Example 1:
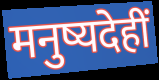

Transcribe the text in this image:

मनुष्यदेहीं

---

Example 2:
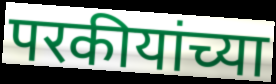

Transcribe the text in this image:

परकीयांच्या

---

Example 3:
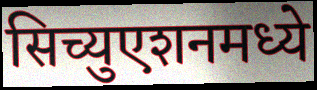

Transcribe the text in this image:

सिच्युएशनमध्ये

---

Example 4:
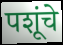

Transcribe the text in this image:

पशूंचे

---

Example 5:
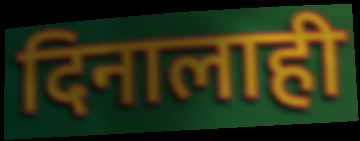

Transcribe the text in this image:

दिनालाही